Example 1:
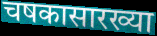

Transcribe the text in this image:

चषकासारख्या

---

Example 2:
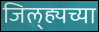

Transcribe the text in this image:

जिल्ह्यच्या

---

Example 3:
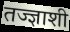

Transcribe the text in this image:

तज्ज्ञाशी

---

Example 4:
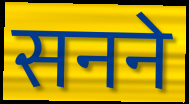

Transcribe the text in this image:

सनने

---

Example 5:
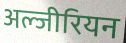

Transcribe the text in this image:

अल्जीरियन